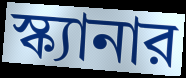
স্ক্যানার